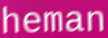
heman